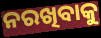
ନରଖିବାକୁ